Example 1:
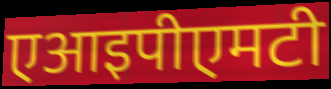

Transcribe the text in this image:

एआइपीएमटी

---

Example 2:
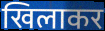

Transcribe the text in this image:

खिलाकर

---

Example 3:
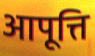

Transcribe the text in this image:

आपूत्ति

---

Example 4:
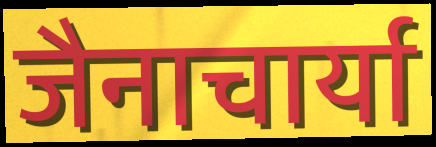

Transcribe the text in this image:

जैनाचार्या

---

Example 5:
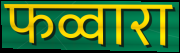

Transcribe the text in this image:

फव्वारा